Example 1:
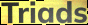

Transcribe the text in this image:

Triads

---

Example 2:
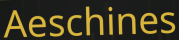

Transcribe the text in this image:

Aeschines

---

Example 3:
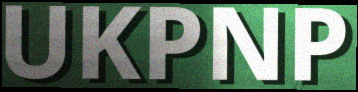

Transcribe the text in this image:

UKPNP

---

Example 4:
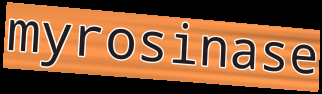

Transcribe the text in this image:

myrosinase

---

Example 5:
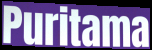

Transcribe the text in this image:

Puritama